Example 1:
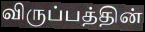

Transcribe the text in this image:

விருப்பத்தின்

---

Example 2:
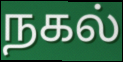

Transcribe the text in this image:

நகல்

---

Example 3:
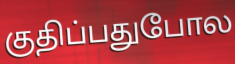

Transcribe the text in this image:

குதிப்பதுபோல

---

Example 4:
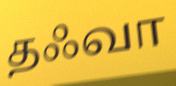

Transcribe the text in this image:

தஃவா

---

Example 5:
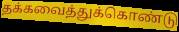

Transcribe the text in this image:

தக்கவைத்துக்கொண்டு